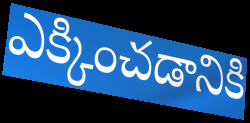
ఎక్కించడానికి